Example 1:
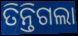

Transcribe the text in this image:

ତିନ୍ତିଗଲା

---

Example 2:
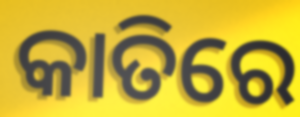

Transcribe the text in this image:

କାତିରେ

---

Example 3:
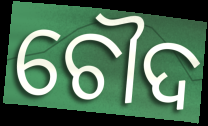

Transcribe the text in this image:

ଚୌଦ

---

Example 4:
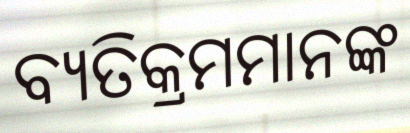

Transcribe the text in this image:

ବ୍ୟତିକ୍ରମମାନଙ୍କ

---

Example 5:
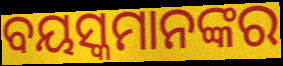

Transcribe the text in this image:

ବୟସ୍କମାନଙ୍କର